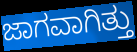
ಜಾಗವಾಗಿತ್ತು